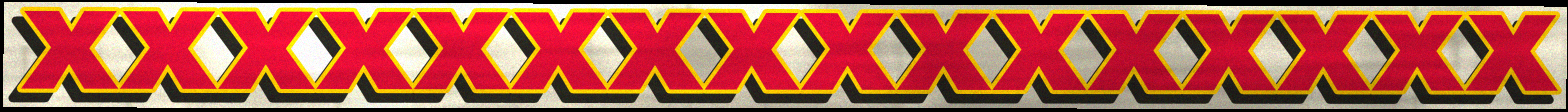
xxxxxxxxxxxxxxxx